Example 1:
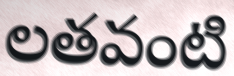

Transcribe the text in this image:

లతవంటి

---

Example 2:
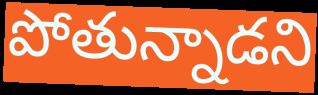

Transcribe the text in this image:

పోతున్నాడని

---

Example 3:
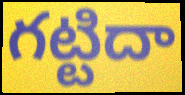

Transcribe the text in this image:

గట్టిదా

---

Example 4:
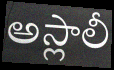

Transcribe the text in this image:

అస్లాలీ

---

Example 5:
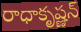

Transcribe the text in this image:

రాధాకృష్ణన్